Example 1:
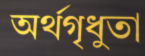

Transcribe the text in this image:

অর্থগৃধুতা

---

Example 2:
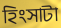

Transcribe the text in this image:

হিংসাটা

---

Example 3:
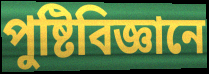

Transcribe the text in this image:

পুষ্টিবিজ্ঞানে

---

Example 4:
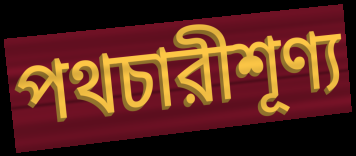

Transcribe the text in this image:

পথচারীশূণ্য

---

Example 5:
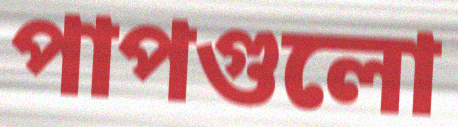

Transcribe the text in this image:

পাপগুলো